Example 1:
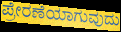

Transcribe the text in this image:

ಪ್ರೇರಣೆಯಾಗುವುದು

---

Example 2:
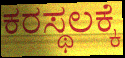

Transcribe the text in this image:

ಕರಸ್ಥಲಕ್ಕೆ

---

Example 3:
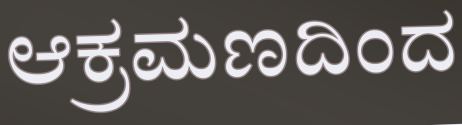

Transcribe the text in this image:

ಆಕ್ರಮಣದಿಂದ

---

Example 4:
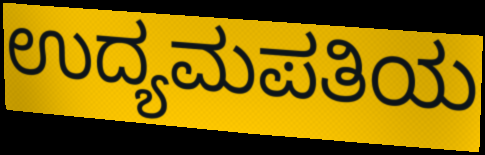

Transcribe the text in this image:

ಉದ್ಯಮಪತಿಯ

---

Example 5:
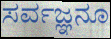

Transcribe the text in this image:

ಸರ್ವಜ್ಞನೂ